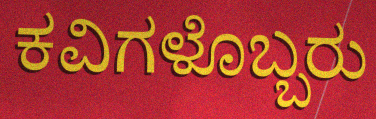
ಕವಿಗಳೊಬ್ಬರು